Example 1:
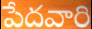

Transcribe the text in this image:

పేదవారి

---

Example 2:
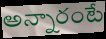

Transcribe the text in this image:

అన్నారంటే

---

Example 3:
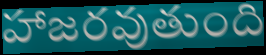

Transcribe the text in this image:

హాజరవుతుంది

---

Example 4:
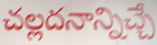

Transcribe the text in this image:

చల్లదనాన్నిచ్చే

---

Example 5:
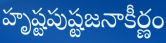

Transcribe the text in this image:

హృష్టపుష్టజనాకీర్ణం